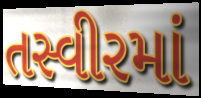
તસ્વીરમાં